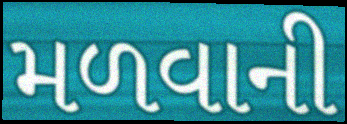
મળવાની